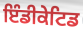
ਇੰਡੀਕੇਟਿਡ